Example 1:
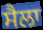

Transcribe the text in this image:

ਸੈਲਾ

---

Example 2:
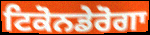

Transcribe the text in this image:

ਟਿਕੋਨਡੇਰੋਗਾ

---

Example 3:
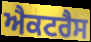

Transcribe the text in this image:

ਐਕਟਰੈਸ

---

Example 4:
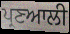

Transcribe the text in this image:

ਪ੍ਰਣਆਲੀ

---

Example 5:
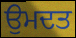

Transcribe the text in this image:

ਉਮਦਤ